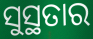
ସୁସ୍ଥତାର